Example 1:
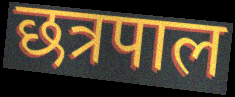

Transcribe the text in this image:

छत्रपाल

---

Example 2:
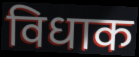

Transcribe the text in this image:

विधाक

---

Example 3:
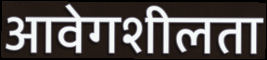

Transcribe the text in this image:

आवेगशीलता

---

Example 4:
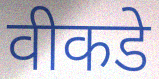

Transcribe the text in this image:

वीकडे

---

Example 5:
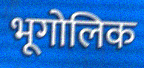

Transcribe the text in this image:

भूगोलिक